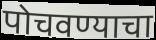
पोचवण्याचा